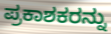
ಪ್ರಕಾಶಕರನ್ನು